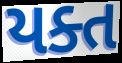
યક્ત